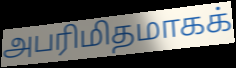
அபரிமிதமாகக்